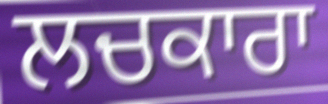
ਲਚਕਾਰਾ